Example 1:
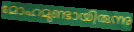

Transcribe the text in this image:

മോഹമുണ്ടായിരുന്നു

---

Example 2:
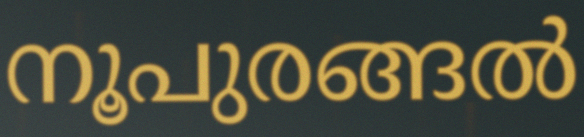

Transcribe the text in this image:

നൂപുരങ്ങൽ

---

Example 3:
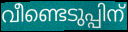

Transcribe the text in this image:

വീണ്ടെടുപ്പിന്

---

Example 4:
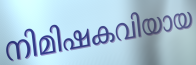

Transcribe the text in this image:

നിമിഷകവിയായ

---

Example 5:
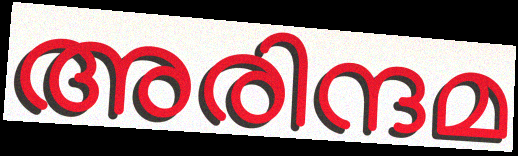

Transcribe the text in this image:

അരിന്ദമ